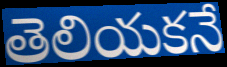
తెలియకనే